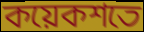
কয়েকশতে